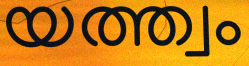
യത്ത്വം